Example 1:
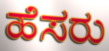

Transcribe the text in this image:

ಹೆಸರು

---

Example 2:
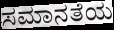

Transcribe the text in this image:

ಸಮಾನತೆಯ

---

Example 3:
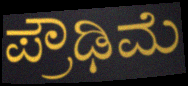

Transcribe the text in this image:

ಪ್ರೌಢಿಮೆ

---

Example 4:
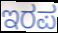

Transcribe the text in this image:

ಇರಪ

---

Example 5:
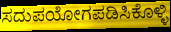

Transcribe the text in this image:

ಸದುಪಯೋಗಪಡಿಸಿಕೊಳ್ಳಿ